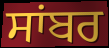
ਸਾਂਬਰ